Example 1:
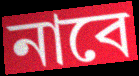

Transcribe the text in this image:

নাবে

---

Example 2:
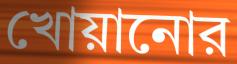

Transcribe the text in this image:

খোয়ানোর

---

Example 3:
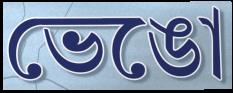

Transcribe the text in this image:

ভেঙো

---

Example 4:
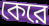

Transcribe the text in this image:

কেরে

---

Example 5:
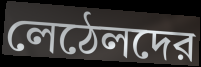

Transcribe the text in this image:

লেঠেলদের